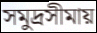
সমুদ্রসীমায়